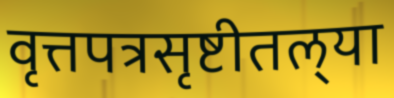
वृत्तपत्रसृष्टीतल्या